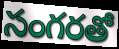
సంగరతో